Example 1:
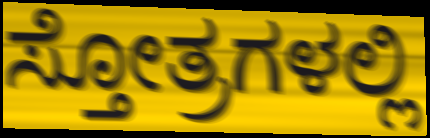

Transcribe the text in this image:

ಸ್ತೋತ್ರಗಳಲ್ಲಿ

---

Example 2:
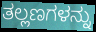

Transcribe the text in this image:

ತಲ್ಲಣಗಳನ್ನು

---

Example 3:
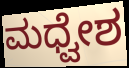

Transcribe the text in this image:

ಮಧ್ವೇಶ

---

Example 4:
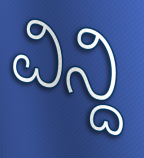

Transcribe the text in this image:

ವಿನ್ದಿ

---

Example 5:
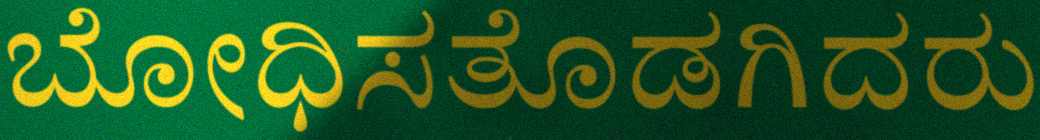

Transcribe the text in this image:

ಬೋಧಿಸತೊಡಗಿದರು